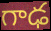
గాఢ